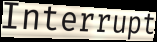
Interrupt